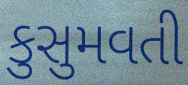
કુસુમવતી